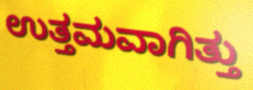
ಉತ್ತಮವಾಗಿತ್ತು